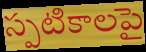
స్పటికాలపై